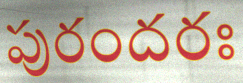
పురందరః